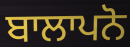
ਬਾਲਾਪਨੋ